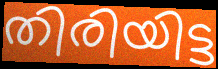
തിരിയിട്ട